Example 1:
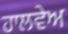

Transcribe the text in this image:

ਹਾਲਵੇਅ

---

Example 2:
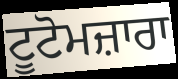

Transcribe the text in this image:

ਟੂਟੋਮਜ਼ਾਰਾ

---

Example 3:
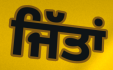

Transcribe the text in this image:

ਜਿੱਤਾਂ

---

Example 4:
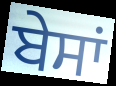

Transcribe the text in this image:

ਬੇਸਾਂ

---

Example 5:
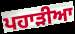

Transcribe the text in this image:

ਪਹਾੜੀਆ